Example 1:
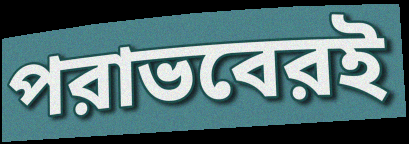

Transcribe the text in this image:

পরাভবেরই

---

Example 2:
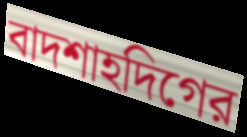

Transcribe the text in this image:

বাদশাহদিগের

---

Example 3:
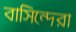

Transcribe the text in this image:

বাসিন্দেরা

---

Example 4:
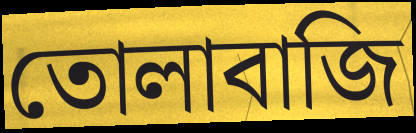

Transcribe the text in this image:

তোলাবাজি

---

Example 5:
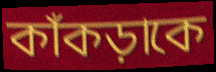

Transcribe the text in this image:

কাঁকড়াকে